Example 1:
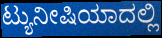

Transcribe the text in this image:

ಟ್ಯುನೀಷಿಯಾದಲ್ಲಿ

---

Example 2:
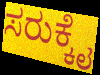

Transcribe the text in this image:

ಸರುಕ್ಕೈ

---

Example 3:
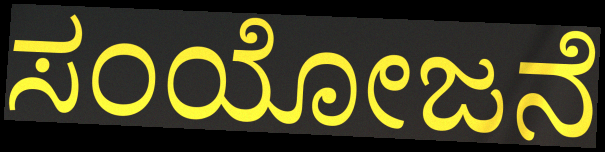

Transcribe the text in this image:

ಸಂಯೋಜನೆ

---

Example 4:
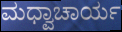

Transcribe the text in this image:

ಮಧ್ವಾಚಾರ್ಯ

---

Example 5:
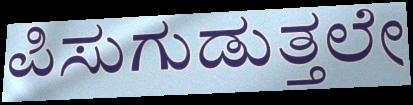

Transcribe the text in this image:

ಪಿಸುಗುಡುತ್ತಲೇ